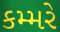
કમ્મરે